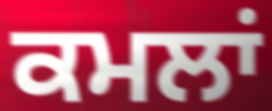
ਕਮਲਾਂ